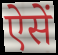
ऐसें